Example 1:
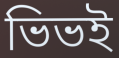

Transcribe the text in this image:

ভিভই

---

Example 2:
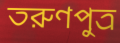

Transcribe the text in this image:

তরুণপুত্র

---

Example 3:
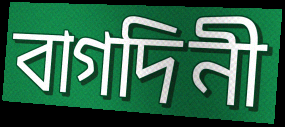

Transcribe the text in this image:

বাগদিনী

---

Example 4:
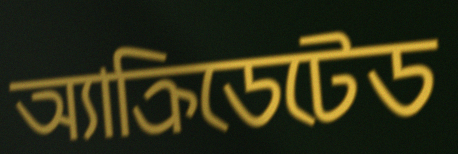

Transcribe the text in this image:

অ্যাক্রিডেটেড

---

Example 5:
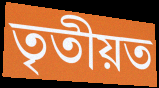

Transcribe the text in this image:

তৃতীয়ত